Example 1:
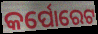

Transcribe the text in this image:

କର୍ପୋରେଟ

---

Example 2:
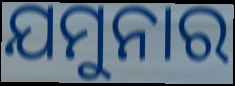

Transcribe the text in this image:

ଯମୁନାର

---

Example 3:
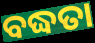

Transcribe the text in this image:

ବଦ୍ଧତା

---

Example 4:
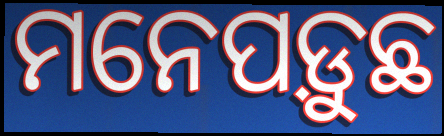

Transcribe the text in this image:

ମନେପଡ଼ୁଛ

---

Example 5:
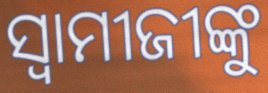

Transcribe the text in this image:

ସ୍ଵାମୀଜୀଙ୍କୁ